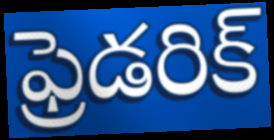
ఫ్రెడరిక్